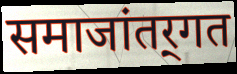
समाजांतर्गत